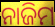
ନାଜିମ